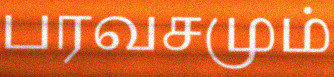
பரவசமும்